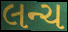
લન્ચ